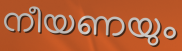
നീയണയും